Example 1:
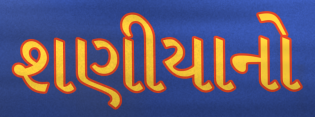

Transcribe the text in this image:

શણીયાનો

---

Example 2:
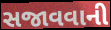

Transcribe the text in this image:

સજાવવાની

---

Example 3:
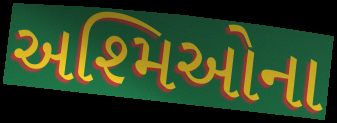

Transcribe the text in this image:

અશ્મિઓના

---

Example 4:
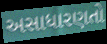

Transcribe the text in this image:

અસાધારણતો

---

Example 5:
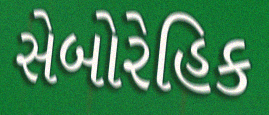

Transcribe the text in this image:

સેબોરેહિક